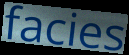
facies